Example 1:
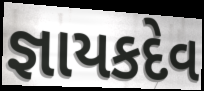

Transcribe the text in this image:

જ્ઞાયકદેવ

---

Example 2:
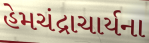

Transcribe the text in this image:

હેમચંદ્રાચાર્યના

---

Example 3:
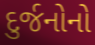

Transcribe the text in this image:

દુર્જનોનો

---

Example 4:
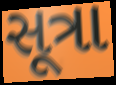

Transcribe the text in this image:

સૂત્રા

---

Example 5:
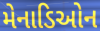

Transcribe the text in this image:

મેનાડિઓન